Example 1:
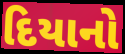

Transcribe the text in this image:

દિયાનો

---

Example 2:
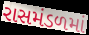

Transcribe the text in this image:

રાસમંડળમાં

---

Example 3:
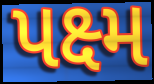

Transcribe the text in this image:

પક્ષ્મ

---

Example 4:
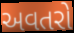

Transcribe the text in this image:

અવતરો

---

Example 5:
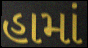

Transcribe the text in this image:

હામાં